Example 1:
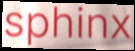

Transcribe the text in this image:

sphinx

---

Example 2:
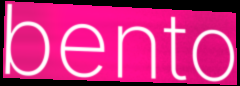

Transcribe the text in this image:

bento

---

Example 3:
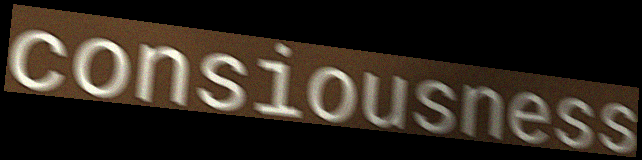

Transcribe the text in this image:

consiousness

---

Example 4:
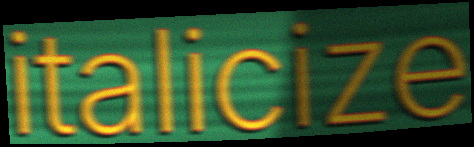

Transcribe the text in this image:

italicize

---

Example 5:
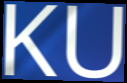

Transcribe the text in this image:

KU